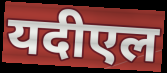
यदीएल